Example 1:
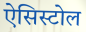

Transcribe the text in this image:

ऐसिस्टोल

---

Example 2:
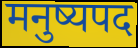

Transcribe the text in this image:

मनुष्यपद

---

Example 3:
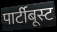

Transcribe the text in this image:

पार्टीबूस्ट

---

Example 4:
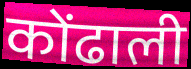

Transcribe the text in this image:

कोंढाली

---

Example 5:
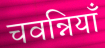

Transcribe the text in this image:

चवन्नियाँ